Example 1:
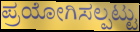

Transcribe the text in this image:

ಪ್ರಯೋಗಿಸಲ್ಪಟ್ಟು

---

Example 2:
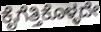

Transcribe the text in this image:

ಕೈಗೆತ್ತಿಕೊಳ್ಳದೇ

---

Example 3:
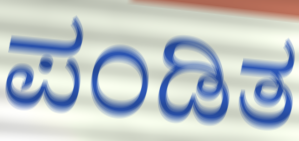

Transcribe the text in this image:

ಪಂಡಿತ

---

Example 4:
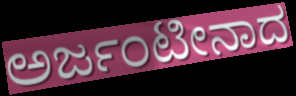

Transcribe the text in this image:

ಅರ್ಜಂಟೀನಾದ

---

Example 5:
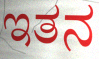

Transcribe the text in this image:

ಇತನ